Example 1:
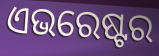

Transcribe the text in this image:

ଏଭରେଷ୍ଟର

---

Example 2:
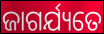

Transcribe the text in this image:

ଜାଗର୍ଯ୍ୟତେ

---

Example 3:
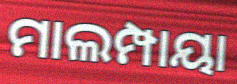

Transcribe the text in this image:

ମାଲମ୍ପାୟା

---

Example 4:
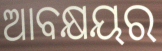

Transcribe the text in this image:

ଆବକ୍ଷୟର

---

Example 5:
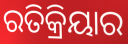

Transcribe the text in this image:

ରତିକ୍ରିୟାର